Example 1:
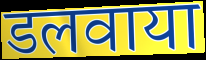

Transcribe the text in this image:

डलवाया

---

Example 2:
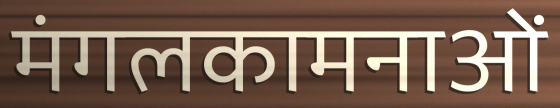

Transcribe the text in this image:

मंगलकामनाओं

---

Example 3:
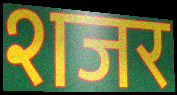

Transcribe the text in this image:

शजर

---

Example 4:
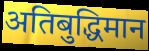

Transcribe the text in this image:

अतिबुद्धिमान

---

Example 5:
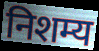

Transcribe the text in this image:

निशम्य